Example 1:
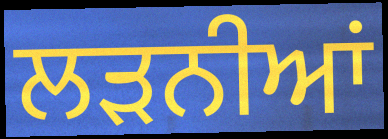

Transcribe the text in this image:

ਲੜਨੀਆਂ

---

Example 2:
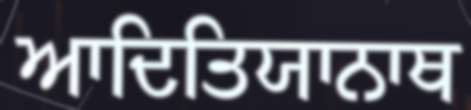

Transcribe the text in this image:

ਆਦਿਤਿਯਾਨਾਥ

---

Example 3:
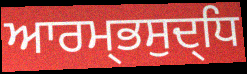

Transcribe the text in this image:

ਆਰਮ੍ਭਸੁਦ੍ਧਿ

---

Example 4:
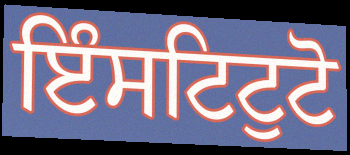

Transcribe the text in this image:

ਇੰਸਟਿਟੁਟੋ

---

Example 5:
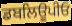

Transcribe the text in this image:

ਡਬਲਿਊਪੀਓ